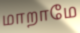
மாறாமே